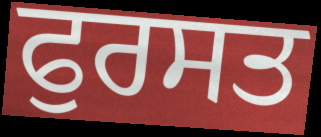
ਫੁਰਸਤ